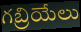
గబ్రియేలు